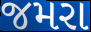
જમરા